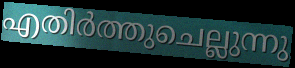
എതിർത്തുചെല്ലുന്നു